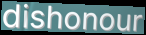
dishonour